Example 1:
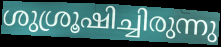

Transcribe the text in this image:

ശുശ്രൂഷിച്ചിരുന്നു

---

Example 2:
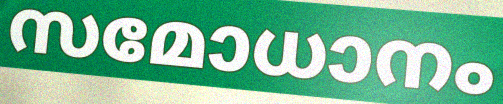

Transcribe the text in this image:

സമോധാനം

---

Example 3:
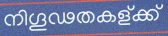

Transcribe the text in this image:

നിഗൂഢതകള്ക്ക്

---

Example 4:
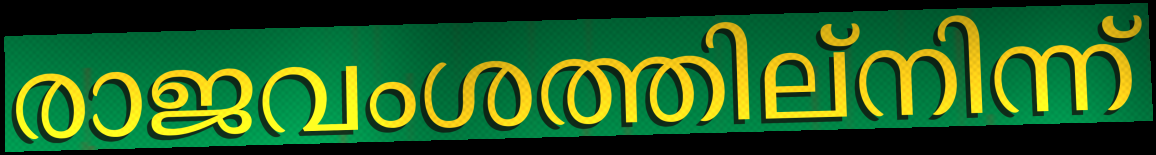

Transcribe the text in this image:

രാജവംശത്തില്നിന്ന്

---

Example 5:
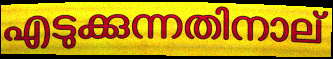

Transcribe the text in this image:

എടുക്കുന്നതിനാല്